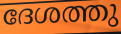
ദേശത്തു